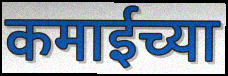
कमाईच्या